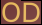
OD